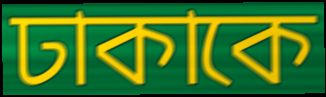
ঢাকাকে